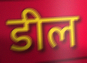
डील